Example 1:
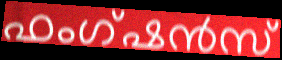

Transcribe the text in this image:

ഫംഗ്ഷൻസ്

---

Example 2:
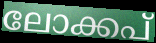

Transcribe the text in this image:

ലോക്കപ്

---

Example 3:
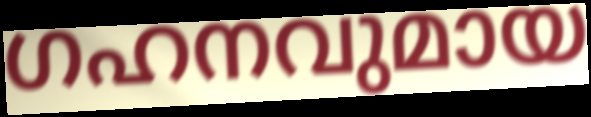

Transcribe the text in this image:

ഗഹനവുമായ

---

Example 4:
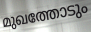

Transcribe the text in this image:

മുഖത്തോടും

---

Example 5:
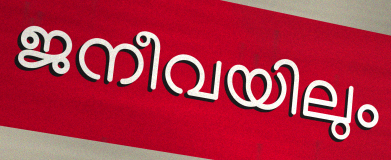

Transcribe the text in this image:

ജനീവയിലും